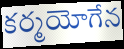
కర్మయోగేన